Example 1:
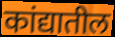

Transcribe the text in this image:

कांद्यातील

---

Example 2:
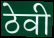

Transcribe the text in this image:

ठेवी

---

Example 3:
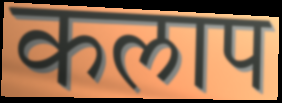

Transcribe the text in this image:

कलाप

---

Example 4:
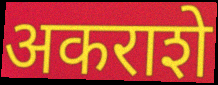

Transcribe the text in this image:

अकराशे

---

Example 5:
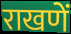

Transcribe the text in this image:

राखणें